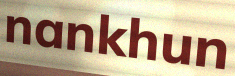
nankhun